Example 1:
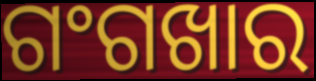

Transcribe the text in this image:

ଗଂଗଖାର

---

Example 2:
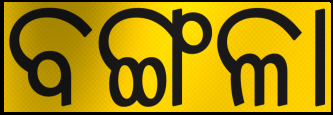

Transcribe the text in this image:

ବଙ୍ଗଳା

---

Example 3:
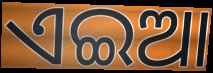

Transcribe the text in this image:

ଏଇଆ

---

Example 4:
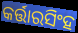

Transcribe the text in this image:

କର୍ତ୍ତାରସିଂହ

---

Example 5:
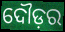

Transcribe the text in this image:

ଦୌଡ଼ର